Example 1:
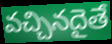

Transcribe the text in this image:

వచ్చినదైతే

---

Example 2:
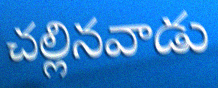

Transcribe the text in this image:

చల్లినవాడు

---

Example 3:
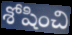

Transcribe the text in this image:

శోషించి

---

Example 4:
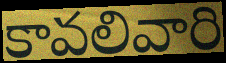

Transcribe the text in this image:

కావలివారి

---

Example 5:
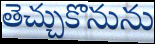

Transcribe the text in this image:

తెచ్చుకొనును